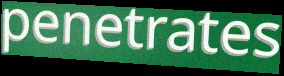
penetrates